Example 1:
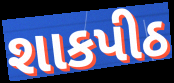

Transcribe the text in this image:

શાકપીઠ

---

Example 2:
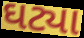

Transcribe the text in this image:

ઘટ્યા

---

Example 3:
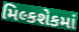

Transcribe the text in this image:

મિલ્કશેકમાં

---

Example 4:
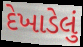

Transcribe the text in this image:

દેખાડેલું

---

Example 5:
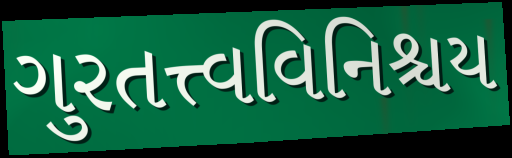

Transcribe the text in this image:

ગુરતત્ત્વવિનિશ્ચય